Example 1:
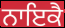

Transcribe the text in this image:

ਨਾਇਕੈ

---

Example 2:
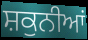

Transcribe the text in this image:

ਸ਼ਕੁਨੀਆਂ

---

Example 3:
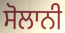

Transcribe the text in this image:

ਸੋਲਾਨੀ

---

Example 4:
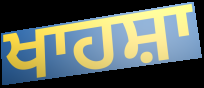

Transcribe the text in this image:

ਖਾਹਸ਼ਾ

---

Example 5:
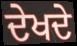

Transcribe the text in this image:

ਦੇਖਦੇ